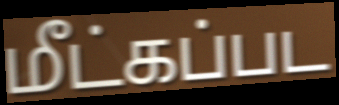
மீட்கப்பட